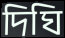
দিঘি